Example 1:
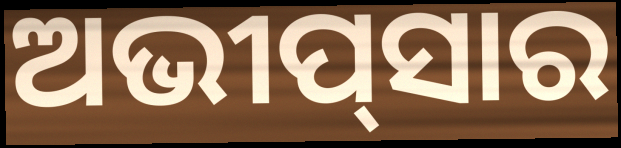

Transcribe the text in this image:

ଅଭୀପ୍‌ସାର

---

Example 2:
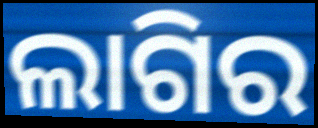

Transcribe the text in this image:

ଲାଗିର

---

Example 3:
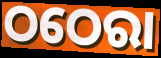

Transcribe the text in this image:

ଠଠେରା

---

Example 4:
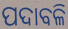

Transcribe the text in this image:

ପଦାବଳି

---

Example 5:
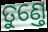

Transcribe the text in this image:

ତୁଣ୍ତେ